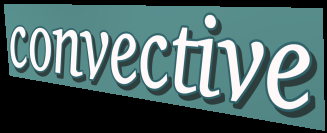
convective